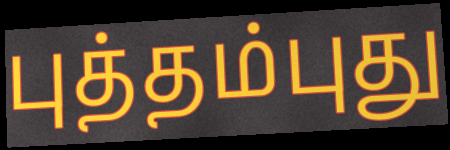
புத்தம்புது